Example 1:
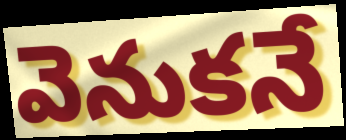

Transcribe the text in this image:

వెనుకనే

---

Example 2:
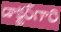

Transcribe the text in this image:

డాక్టర్‌గారి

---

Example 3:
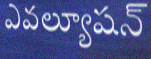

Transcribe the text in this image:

ఎవల్యూషన్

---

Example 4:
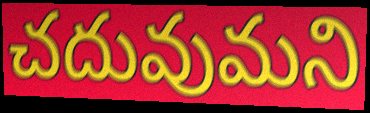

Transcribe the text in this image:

చదువుమని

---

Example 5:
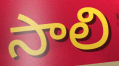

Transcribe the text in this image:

సాలి